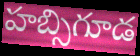
హబ్సిగూడ